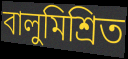
বালুমিশ্রিত